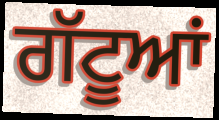
ਗੱਟੂਆਂ